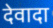
देवादा